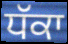
ਧੱਕਾ